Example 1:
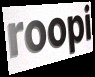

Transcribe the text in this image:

roopi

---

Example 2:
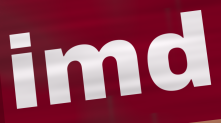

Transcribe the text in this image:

imd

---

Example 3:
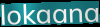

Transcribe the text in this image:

lokaana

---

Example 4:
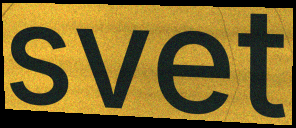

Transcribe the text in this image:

svet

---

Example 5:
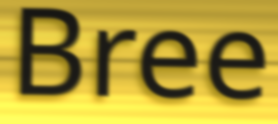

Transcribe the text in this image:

Bree